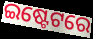
ଇଷ୍ଟେଟରେ